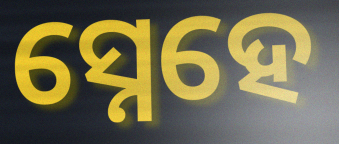
ସ୍ନେହେ